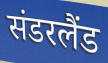
संडरलैंड